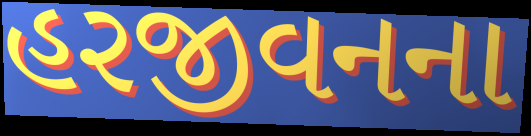
હરજીવનના